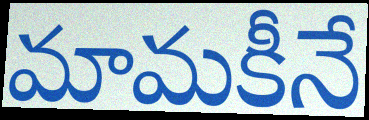
మామకీనే